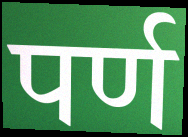
पर्ण